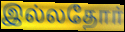
இல்லதோர்